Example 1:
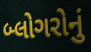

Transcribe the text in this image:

બ્લોગરોનું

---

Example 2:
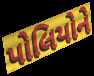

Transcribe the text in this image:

પોલિયોને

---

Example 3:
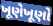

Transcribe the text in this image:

ખૂણેખૂણો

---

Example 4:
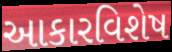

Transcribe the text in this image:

આકારવિશેષ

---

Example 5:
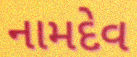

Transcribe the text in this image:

નામદેવ